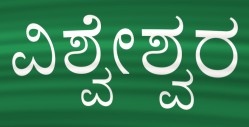
ವಿಶ್ವೇಶ್ವರ